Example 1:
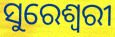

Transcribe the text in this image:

ସୁରେଶ୍ଵରୀ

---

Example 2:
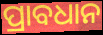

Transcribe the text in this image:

ପ୍ରାବଧାନ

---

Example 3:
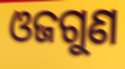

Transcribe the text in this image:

ଓଜଗୁଣ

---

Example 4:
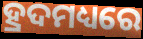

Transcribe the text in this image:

ହ୍ରଦମଧ୍ୟରେ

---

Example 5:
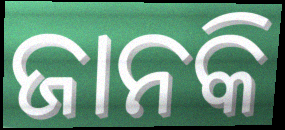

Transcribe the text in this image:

ଜାନକି